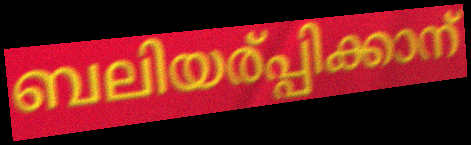
ബലിയര്പ്പിക്കാന്